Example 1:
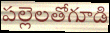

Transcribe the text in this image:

పల్లెలతోగూడి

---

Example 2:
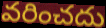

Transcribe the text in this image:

వరించదు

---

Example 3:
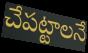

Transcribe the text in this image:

చేపట్టాలనే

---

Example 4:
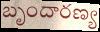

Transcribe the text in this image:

బృందారణ్య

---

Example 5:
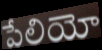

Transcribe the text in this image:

పేలియో